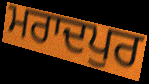
ਮਰਾਦਪੁਰ